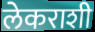
लेकराशी